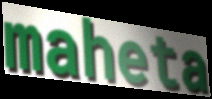
maheta